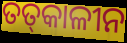
ତତ୍‍କାଳୀନ